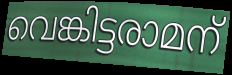
വെങ്കിട്ടരാമന്